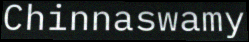
Chinnaswamy